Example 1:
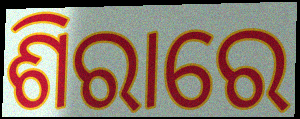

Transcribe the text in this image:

ଶିରାରେ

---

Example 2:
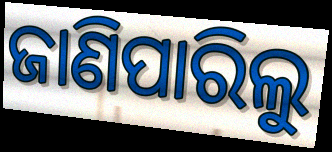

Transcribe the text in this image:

ଜାଣିପାରିଲୁ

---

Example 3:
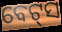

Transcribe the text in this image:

ବେଟ୍‌ସ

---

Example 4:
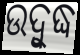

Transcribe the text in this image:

ଉଦ୍ୱୁଦ୍ଧ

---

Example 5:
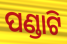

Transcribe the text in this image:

ପଣ୍ଡାଟି